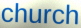
church